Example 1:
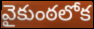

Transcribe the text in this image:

వైకుంఠలోక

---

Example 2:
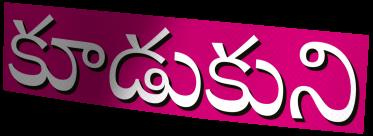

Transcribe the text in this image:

కూడుకుని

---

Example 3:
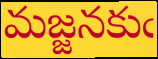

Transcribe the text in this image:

మజ్జనకుఁ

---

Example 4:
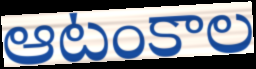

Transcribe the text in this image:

ఆటంకాల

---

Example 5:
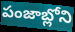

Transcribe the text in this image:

పంజాబ్లోని